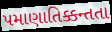
પમાણાતિક્કન્તતા